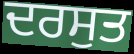
ਦਰਸੁਤ